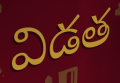
విడత